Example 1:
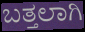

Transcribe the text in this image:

ಬತ್ತಲಾಗಿ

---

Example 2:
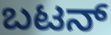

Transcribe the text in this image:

ಬಟನ್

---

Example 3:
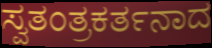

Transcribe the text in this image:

ಸ್ವತಂತ್ರಕರ್ತನಾದ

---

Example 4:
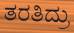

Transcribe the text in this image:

ತರತಿದ್ರು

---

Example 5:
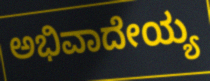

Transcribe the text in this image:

ಅಭಿವಾದೇಯ್ಯ